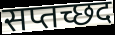
सप्तच्छद